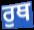
ਰੁਥ